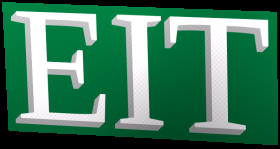
EIT